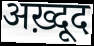
अख़्दूद